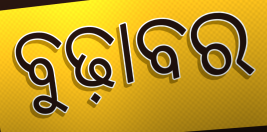
ବୁଢ଼ାବର